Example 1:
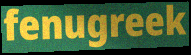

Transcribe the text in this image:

fenugreek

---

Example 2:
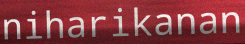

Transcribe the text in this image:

niharikanan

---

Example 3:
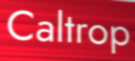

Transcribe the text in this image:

Caltrop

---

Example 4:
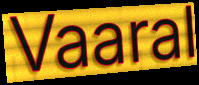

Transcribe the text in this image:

Vaaral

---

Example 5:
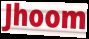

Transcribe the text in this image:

Jhoom